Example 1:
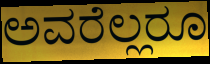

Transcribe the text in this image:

ಅವರೆಲ್ಲರೂ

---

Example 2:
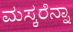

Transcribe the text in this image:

ಮಸ್ಕರೆನ್ನಾ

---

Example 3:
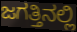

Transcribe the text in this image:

ಜಗತ್ತಿನಲ್ಲಿ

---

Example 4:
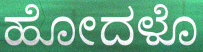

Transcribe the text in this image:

ಹೋದಳೊ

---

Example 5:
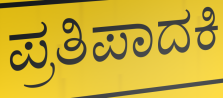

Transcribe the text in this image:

ಪ್ರತಿಪಾದಕಿ